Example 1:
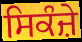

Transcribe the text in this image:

ਸਿਕੰਜ਼ੇ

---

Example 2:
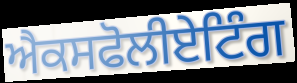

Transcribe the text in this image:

ਐਕਸਫੋਲੀਏਟਿੰਗ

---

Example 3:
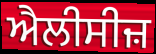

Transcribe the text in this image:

ਐਲੀਸੀਜ਼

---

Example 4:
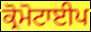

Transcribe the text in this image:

ਕ੍ਰੋਮੋਟਾਈਪ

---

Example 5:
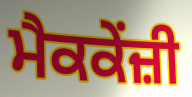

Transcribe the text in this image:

ਮੈਕਕੇਂਜ਼ੀ